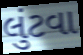
લુંટવા